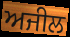
ਅਜੀਲ